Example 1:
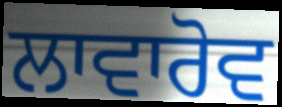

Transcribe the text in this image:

ਲਾਵਾਰੋਵ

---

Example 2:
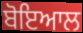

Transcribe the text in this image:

ਬੋਇਆਲ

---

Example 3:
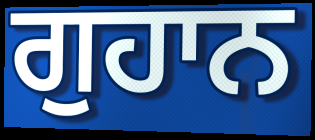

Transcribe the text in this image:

ਗੁਹਾਨ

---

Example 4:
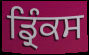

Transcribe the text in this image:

ਡ੍ਰਿੰਕਸ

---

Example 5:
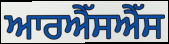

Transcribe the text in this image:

ਆਰਐੱਸਐੱਸ